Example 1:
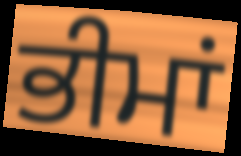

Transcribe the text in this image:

ਭੀਮਾਂ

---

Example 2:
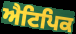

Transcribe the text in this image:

ਐਟਿਪਿਕ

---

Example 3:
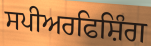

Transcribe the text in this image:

ਸਪੀਅਰਫਿਸ਼ਿੰਗ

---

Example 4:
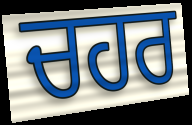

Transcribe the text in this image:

ਚਹਰ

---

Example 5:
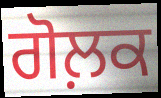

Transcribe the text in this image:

ਗੋਲ਼ਕ